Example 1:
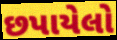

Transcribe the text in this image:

છપાયેલો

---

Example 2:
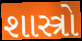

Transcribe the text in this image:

શાસ્ત્રો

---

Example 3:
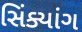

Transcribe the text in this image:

સિંક્યાંગ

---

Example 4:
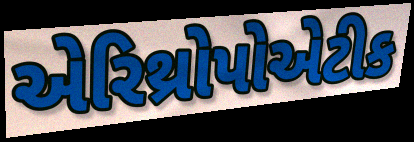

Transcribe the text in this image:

એરિથ્રોપોએટીક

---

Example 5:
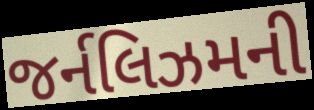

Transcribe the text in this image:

જર્નલિઝમની